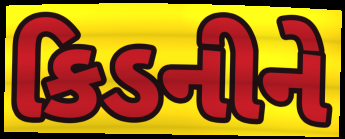
કિડનીને